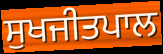
ਸੁਖਜੀਤਪਾਲ